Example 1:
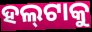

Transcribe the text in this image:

ହଲ୍‌ଟାକୁ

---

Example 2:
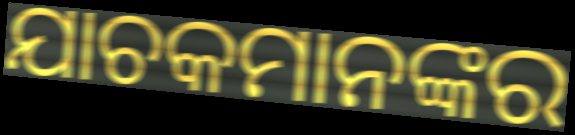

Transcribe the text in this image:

ଯାଚକମାନଙ୍କର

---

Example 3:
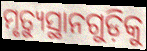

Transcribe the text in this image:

ମୃତ୍ୟୁସ୍ଥାନଗୁଡ଼ିକୁ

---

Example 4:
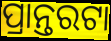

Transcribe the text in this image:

ପ୍ରାନ୍ତରଟା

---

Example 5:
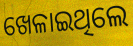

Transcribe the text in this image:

ଖେଳାଇଥିଲେ